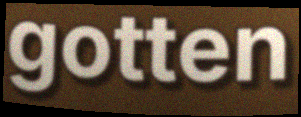
gotten